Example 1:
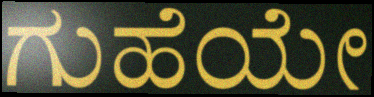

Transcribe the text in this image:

ಗುಹೆಯೇ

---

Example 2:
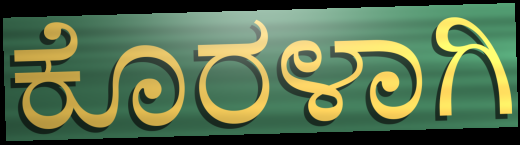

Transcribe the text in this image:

ಕೊರಳಾಗಿ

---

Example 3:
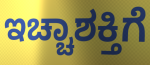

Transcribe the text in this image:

ಇಚ್ಚಾಶಕ್ತಿಗೆ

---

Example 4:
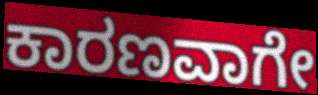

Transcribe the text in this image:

ಕಾರಣವಾಗೇ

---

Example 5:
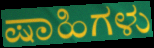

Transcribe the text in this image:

ಷಾಹಿಗಳು